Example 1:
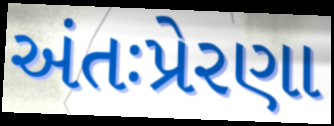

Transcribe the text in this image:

અંતઃપ્રેરણા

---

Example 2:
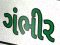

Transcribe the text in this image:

ગંભીર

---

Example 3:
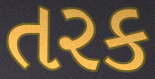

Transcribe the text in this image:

તરક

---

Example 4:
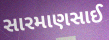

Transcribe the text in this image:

સારમાણસાઈ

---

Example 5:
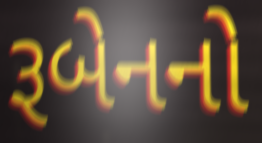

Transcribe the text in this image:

રૂબેનનો